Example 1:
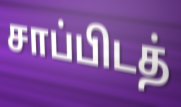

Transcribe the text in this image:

சாப்பிடத்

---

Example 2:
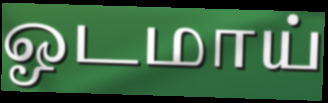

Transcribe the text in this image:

ஓடமாய்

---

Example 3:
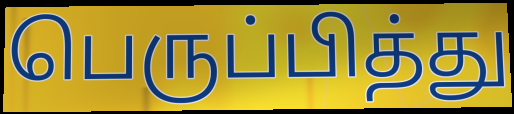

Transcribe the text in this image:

பெருப்பித்து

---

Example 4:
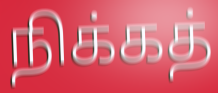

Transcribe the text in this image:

நிக்கத்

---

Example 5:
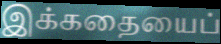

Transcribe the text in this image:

இக்கதையைப்